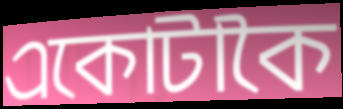
একোটাকৈ